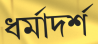
ধর্মাদর্শ